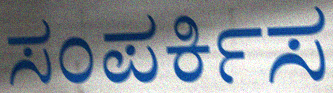
ಸಂಪರ್ಕಿಸ